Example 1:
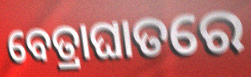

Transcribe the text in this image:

ବେତ୍ରାଘାତରେ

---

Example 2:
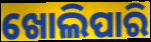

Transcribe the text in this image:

ଖୋଲିପାରି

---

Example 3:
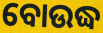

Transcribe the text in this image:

ବୋଉଦ୍ଧ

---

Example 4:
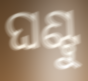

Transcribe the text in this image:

ଘଣ୍ଟୁ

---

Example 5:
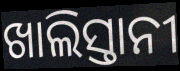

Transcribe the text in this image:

ଖାଲିସ୍ତାନୀ